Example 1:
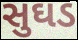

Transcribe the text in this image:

સુઘડ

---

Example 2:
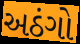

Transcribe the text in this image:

અઠંગો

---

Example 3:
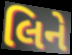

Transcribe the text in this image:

લિને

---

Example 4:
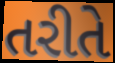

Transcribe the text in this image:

તરીતે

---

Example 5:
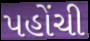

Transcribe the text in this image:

પહોંચી